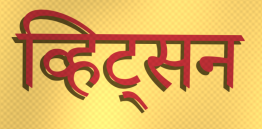
व्हिट्सन